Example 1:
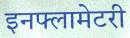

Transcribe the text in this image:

इनफ्लामेटरी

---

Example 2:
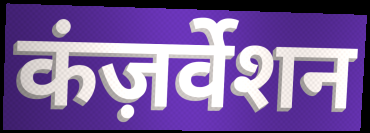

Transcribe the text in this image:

कंज़र्वेशन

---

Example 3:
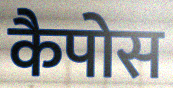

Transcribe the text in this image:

कैपोस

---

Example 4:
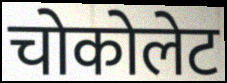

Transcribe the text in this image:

चोकोलेट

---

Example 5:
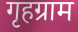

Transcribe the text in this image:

गृहग्राम